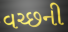
વચ્છની